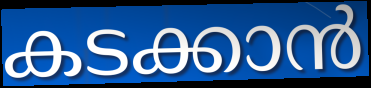
കടക്കാൻ